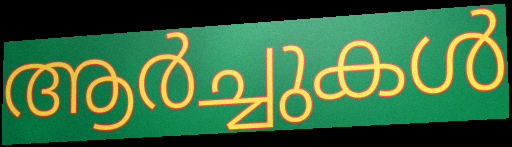
ആർച്ചുകൾ